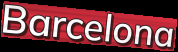
Barcelona